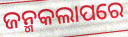
ଜନ୍ମକଲାପରେ